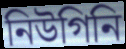
নিউগিনি